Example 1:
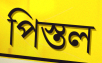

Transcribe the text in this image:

পিস্তল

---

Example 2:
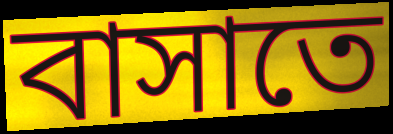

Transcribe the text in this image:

বাসাতে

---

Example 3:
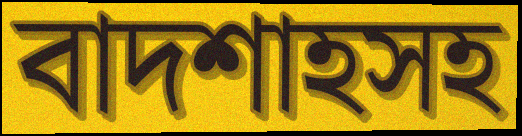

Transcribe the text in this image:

বাদশাহসহ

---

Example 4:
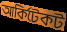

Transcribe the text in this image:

আর্কিটেকট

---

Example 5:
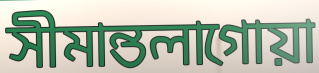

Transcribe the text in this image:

সীমান্তলাগোয়া